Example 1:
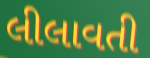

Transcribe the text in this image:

લીલાવતી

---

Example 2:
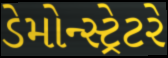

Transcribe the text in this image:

ડેમોન્સ્ટ્રેટરે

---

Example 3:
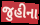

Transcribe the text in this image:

જુહીના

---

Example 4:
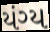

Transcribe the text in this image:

યંગ્ય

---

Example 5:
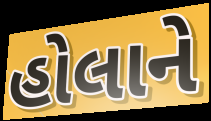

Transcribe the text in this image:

હોલાને